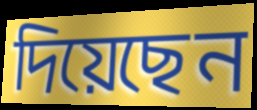
দিয়েছেন